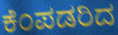
ಕೆಂಪಡರಿದ